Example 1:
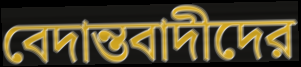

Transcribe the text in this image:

বেদান্তবাদীদের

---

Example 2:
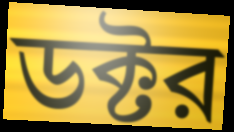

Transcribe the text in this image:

ডক্টর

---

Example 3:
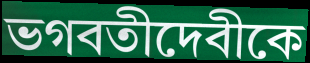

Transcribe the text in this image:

ভগবতীদেবীকে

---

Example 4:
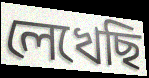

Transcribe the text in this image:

লেখেছি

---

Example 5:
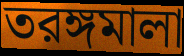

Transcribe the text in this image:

তরঙ্গমালা